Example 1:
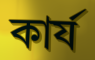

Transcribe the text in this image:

কার্য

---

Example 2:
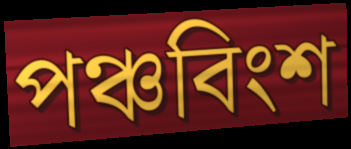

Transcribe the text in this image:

পঞ্চবিংশ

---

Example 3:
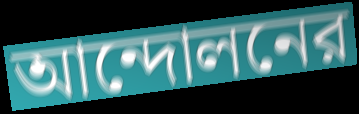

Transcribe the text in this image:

আন্দোলনের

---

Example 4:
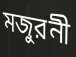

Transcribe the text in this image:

মজুরনী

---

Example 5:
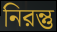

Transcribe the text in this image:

নিরন্তু